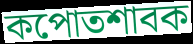
কপোতশাবক